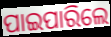
ପାଇପାରିଲେ